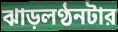
ঝাড়লণ্ঠনটার